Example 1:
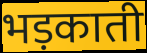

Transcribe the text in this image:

भड़काती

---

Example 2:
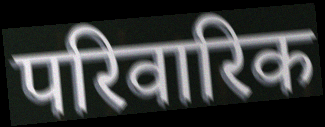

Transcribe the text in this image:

परिवारिक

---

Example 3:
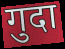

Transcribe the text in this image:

गुदा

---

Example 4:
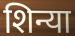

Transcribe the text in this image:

शिन्या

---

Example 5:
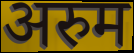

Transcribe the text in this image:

अरुम